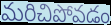
మరిచిపోవడం